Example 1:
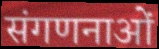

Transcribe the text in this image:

संगणनाओं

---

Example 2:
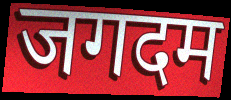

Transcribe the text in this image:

जगदम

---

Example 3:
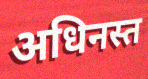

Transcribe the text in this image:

अधिनस्त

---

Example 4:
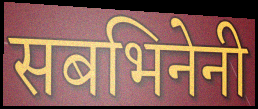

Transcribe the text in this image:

सबभिनेनी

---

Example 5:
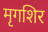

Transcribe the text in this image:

मृगशिर